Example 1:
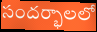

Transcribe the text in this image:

సందర్భాలలో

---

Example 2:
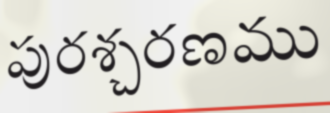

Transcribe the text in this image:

పురశ్చరణము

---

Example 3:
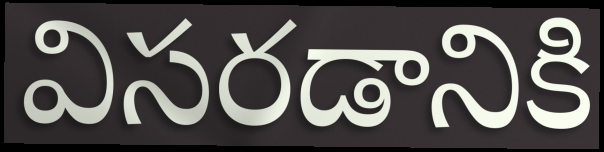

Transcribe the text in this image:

విసరడానికి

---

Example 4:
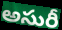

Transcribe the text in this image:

అసురీ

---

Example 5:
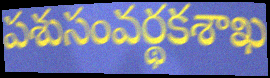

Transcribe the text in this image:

పశుసంవర్థకశాఖ